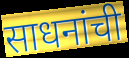
साधनांची